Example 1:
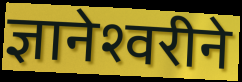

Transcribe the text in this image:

ज्ञानेश्वरीने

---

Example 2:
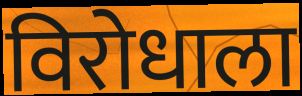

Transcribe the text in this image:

विरोधाला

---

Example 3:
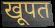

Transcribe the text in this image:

खूपत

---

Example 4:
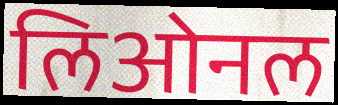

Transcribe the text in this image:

लिओनल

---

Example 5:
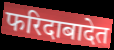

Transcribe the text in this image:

फरिदाबादेत